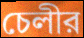
চেলীর